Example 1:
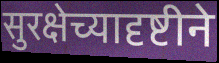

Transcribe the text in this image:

सुरक्षेच्यादृष्टीने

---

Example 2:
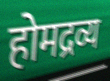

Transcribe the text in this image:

होमद्रव्य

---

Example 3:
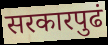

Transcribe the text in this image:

सरकारपुढं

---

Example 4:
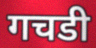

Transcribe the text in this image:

गचडी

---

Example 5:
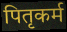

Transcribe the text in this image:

पितृकर्म